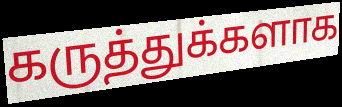
கருத்துக்களாக